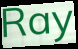
Ray